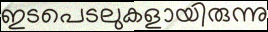
ഇടപെടലുകളായിരുന്നു